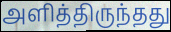
அளித்திருந்தது